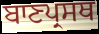
ਬਾਣਪ੍ਰਸਥ